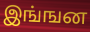
இங்ஙன